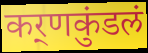
कर्णकुंडलं